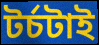
টর্চটাই